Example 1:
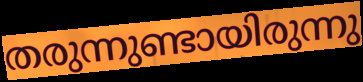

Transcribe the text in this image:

തരുന്നുണ്ടായിരുന്നു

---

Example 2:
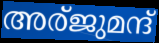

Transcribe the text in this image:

അര്ജുമന്ദ്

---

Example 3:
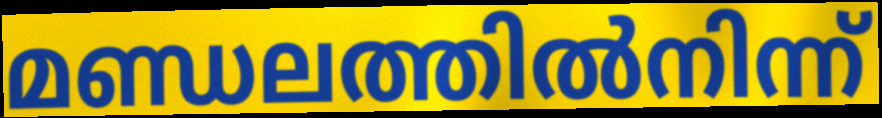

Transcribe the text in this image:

മണ്ഡലത്തിൽനിന്ന്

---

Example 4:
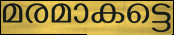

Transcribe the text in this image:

മരമാകട്ടെ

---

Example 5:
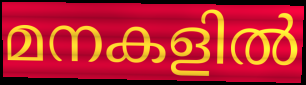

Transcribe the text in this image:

മനകളിൽ